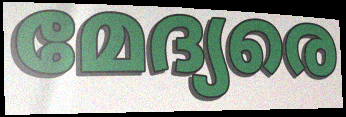
മേദ്യരെ